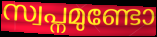
സ്വപ്നമുണ്ടോ